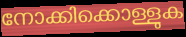
നോക്കിക്കൊള്ളുക